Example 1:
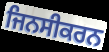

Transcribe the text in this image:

ਜਿਨਸੀਕਰਨ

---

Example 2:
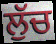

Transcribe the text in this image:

ਲੁੱਚ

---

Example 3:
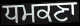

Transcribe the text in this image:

ਧਮਕਣਾ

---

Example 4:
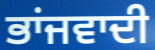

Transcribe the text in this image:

ਭਾਂਜਵਾਦੀ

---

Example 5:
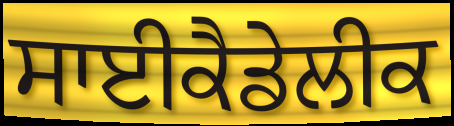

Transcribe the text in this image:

ਸਾਈਕੈਡੇਲੀਕ